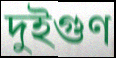
দুইগুণ